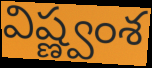
విష్ణ్వంశ